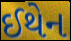
ઈથેન